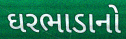
ઘરભાડાનો